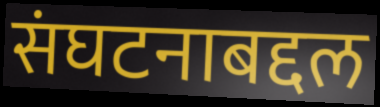
संघटनाबद्दल